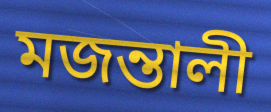
মজন্তালী